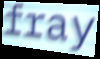
fray